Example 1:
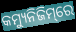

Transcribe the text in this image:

କମ୍ୟୁନିଜିମ୍‌ରେ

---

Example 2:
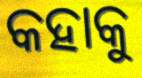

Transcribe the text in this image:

କହାକୁ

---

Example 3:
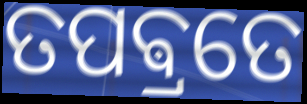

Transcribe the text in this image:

ତପଵ୍ରତେ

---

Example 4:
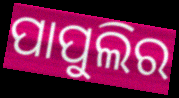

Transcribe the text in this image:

ପାପୁଲିର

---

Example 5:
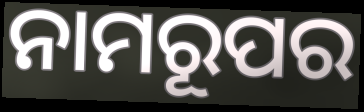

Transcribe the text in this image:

ନାମରୂପର